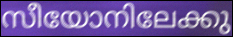
സീയോനിലേക്കു